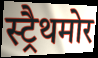
स्ट्रैथमोर